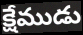
క్షేముడు